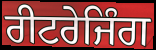
ਰੀਟਰੇਜਿੰਗ